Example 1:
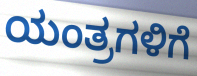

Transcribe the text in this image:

ಯಂತ್ರಗಳಿಗೆ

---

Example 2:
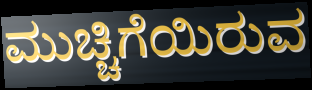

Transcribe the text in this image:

ಮುಚ್ಚಿಗೆಯಿರುವ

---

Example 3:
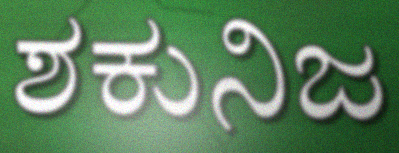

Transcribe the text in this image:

ಶಕುನಿಜ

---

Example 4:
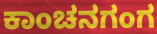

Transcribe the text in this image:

ಕಾಂಚನಗಂಗ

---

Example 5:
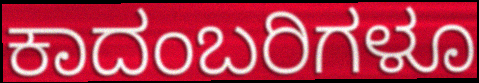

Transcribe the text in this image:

ಕಾದಂಬರಿಗಳೂ